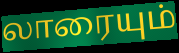
லாரையும்